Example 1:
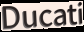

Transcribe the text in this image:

Ducati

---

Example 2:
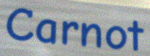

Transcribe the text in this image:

Carnot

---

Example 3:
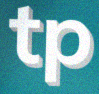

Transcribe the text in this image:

tp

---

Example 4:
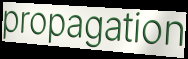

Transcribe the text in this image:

propagation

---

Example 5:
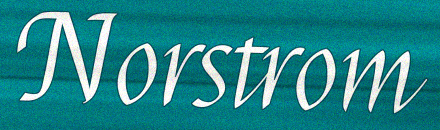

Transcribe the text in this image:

Norstrom